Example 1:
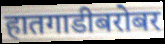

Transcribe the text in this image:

हातगाडीबरोबर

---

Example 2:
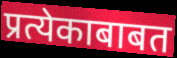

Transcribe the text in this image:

प्रत्येकाबाबत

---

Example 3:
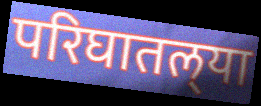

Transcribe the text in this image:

परिघातल्या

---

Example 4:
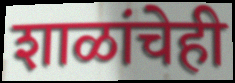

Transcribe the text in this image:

शाळांचेही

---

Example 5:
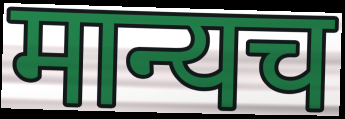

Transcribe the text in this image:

मान्यच